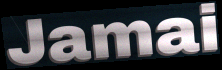
Jamai